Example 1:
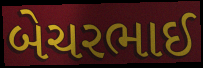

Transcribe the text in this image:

બેચરભાઈ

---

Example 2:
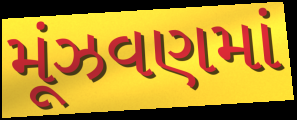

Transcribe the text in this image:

મૂંઝવણમાં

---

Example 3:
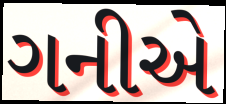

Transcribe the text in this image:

ગનીએ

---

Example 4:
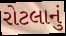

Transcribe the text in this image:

રોટલાનું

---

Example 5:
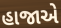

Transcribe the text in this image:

હાજાએ